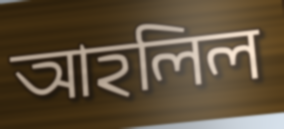
আহলিল